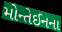
મોન્તેઈનના